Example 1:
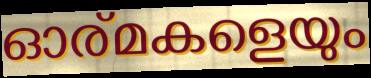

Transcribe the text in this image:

ഓര്മകളെയും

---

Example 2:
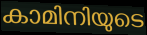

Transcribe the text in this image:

കാമിനിയുടെ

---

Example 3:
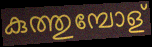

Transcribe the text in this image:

കുത്തുമ്പോള്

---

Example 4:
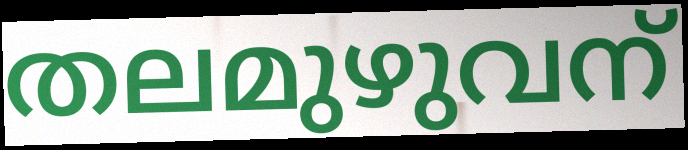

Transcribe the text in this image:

തലമുഴുവന്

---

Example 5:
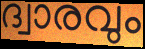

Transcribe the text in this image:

ദ്വാരവും